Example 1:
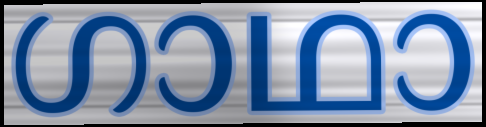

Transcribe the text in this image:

ഗാഥാ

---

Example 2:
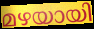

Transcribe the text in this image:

മഴയായി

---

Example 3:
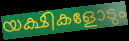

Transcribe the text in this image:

യക്ഷികളോടും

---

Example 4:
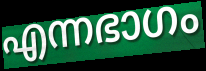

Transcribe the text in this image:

എന്നഭാഗം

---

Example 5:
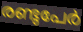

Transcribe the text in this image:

രണ്ടുപേർ